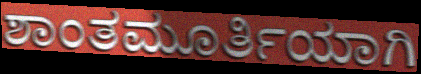
ಶಾಂತಮೂರ್ತಿಯಾಗಿ